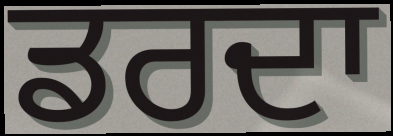
ਡਰਦਾ